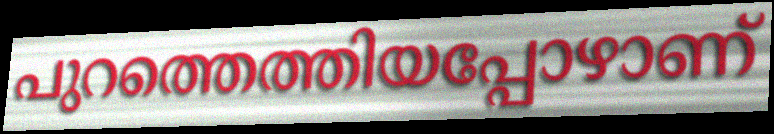
പുറത്തെത്തിയപ്പോഴാണ്